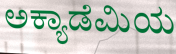
ಅಕ್ಯಾಡೆಮಿಯ